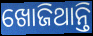
ଖୋଜିଥାନ୍ତି